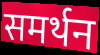
समर्थन